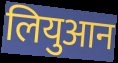
लियुआन